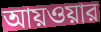
আয়ওয়ার